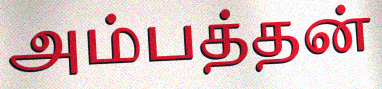
அம்பத்தன்